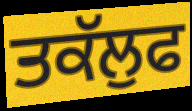
ਤਕੱਲੁਫ